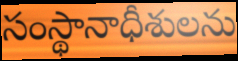
సంస్థానాధీశులను